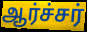
ஆர்ச்சர்